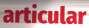
articular